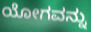
ಯೋಗವನ್ನು